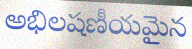
అభిలషణీయమైన